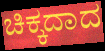
ಚಿಕ್ಕದಾದ